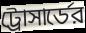
ট্রোসার্ডের